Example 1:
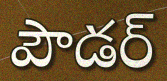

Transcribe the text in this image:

పౌడర్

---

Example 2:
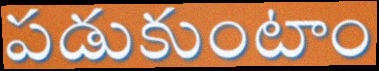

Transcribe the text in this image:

పడుకుంటాం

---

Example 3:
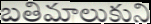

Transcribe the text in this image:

బతిమాలుకుని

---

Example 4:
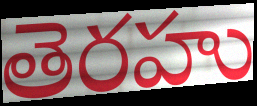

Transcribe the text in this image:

తెరహు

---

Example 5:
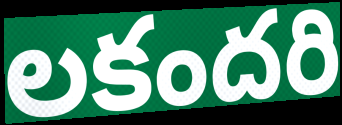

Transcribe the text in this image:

లకందరి